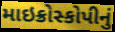
માઇક્રોસ્કોપીનું